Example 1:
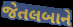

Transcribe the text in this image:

જેતલબાને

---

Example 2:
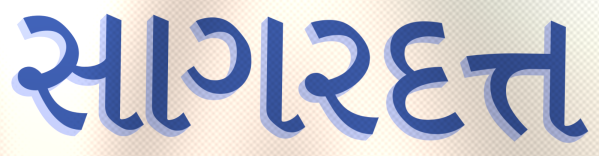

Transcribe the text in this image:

સાગરદત્ત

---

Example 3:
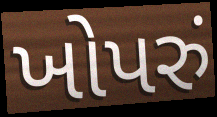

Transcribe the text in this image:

ખોપરું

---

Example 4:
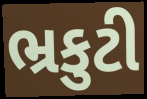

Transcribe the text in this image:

ભ્રકુટી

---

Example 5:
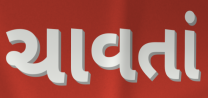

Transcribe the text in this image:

ચાવતાં